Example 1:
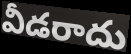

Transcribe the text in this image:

వీడరాదు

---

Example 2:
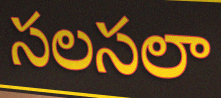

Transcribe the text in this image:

సలసలా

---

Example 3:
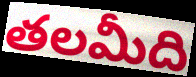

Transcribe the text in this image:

తలమీది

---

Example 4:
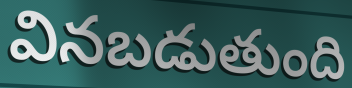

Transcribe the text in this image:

వినబడుతుంది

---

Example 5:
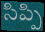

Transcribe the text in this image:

సిప్పి